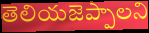
తెలియజెప్పాలని